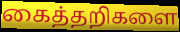
கைத்தறிகளை